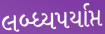
લબ્ધ્યપર્યાપ્ત